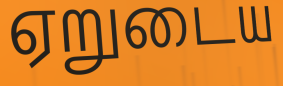
ஏறுடைய